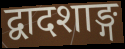
द्वादशाङ्ग